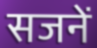
सजनें